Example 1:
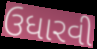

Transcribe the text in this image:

ઉધારવી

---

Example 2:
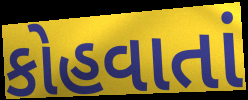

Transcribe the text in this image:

કોહવાતાં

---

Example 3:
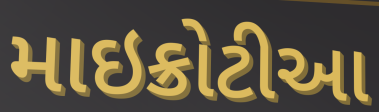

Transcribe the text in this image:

માઇક્રોટીઆ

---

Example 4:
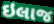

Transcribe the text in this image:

ઇલાજ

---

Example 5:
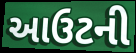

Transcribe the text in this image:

આઉટની